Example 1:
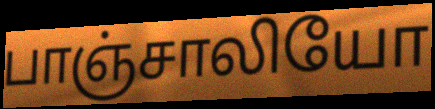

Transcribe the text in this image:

பாஞ்சாலியோ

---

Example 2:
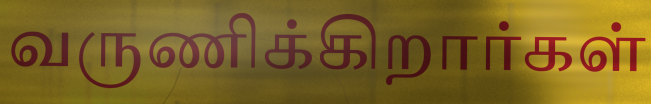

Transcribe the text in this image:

வருணிக்கிறார்கள்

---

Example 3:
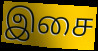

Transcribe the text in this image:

இசை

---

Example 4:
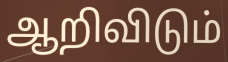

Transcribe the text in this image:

ஆறிவிடும்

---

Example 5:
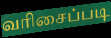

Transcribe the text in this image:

வரிசைப்படி